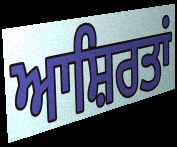
ਆਸ਼ਿਰਤਾਂ